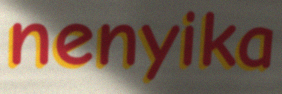
nenyika